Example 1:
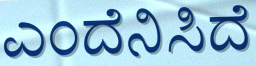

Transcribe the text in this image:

ಎಂದೆನಿಸಿದೆ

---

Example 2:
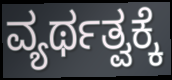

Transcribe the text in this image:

ವ್ಯರ್ಥತ್ವಕ್ಕೆ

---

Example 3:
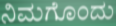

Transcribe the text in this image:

ನಿಮಗೊಂದು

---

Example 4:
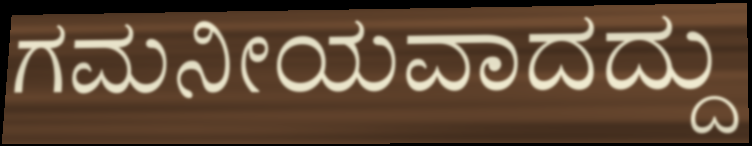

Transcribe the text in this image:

ಗಮನೀಯವಾದದ್ದು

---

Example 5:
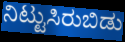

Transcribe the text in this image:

ನಿಟ್ಟುಸಿರುಬಿಡು